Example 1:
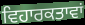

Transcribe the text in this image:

ਵਿਹਾਰਕਤਾਵਾਂ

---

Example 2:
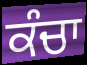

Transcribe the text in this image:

ਕੰਚਾ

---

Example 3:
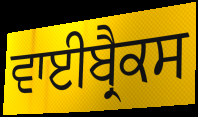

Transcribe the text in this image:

ਵਾਈਬ੍ਰੈਕਸ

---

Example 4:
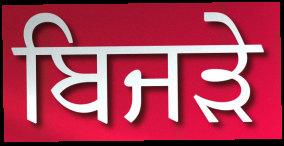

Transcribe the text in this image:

ਬਿਜੜੇ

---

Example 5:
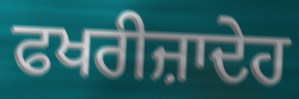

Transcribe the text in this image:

ਫਖਰੀਜ਼ਾਦੇਹ